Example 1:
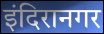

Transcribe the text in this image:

इंदिरानगर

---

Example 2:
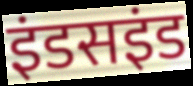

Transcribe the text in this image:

इंडसइंड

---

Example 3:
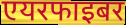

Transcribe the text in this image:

एयरफाइबर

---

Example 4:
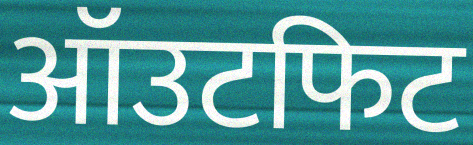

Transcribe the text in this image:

ऑउटफिट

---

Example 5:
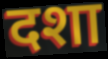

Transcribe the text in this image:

दशा